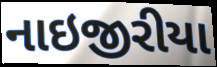
નાઇજીરીયા